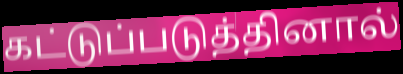
கட்டுப்படுத்தினால்